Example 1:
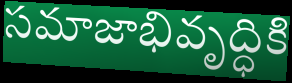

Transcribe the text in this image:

సమాజాభివృద్ధికి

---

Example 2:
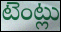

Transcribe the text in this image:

టెంట్లు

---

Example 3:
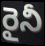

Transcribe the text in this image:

రైనీ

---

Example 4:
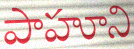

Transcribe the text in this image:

పాహూని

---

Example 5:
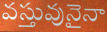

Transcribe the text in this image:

వస్తువునైనా